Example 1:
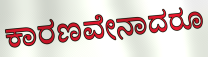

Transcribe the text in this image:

ಕಾರಣವೇನಾದರೂ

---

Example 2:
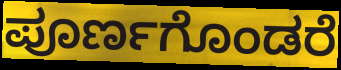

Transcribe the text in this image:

ಪೂರ್ಣಗೊಂಡರೆ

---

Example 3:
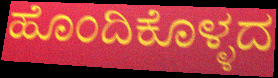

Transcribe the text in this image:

ಹೊಂದಿಕೊಳ್ಳದ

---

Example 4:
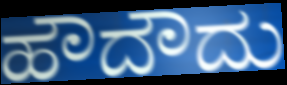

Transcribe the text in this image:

ಹೌದೌದು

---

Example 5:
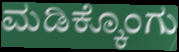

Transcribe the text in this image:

ಮಡಿಕ್ಕೊಂಗು